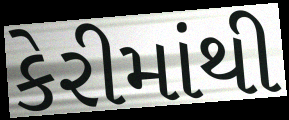
કેરીમાંથી